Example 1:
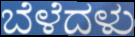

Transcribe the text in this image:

ಬೆಳೆದಳು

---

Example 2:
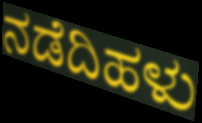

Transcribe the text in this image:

ನಡೆದಿಹಳು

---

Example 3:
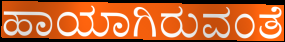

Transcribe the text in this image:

ಹಾಯಾಗಿರುವಂತೆ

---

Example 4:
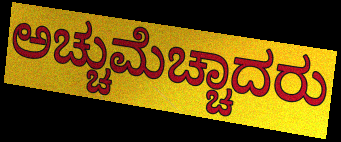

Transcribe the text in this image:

ಅಚ್ಚುಮೆಚ್ಚಾದರು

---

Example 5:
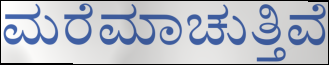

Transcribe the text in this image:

ಮರೆಮಾಚುತ್ತಿವೆ